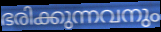
ഭരിക്കുന്നവനും